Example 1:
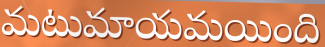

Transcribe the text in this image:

మటుమాయమయింది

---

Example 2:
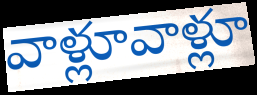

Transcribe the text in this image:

వాళ్లూవాళ్లూ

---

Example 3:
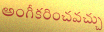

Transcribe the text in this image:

అంగీకరించవచ్చు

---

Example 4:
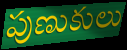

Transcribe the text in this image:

పుణుకులు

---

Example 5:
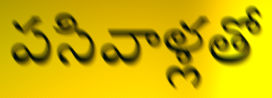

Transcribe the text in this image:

పసివాళ్లతో